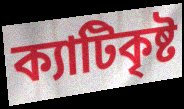
ক্যাটিকৃষ্ট